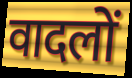
वादलों